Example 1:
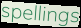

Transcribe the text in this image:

spellings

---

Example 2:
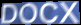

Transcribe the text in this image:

DOCX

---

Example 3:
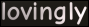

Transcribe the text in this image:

lovingly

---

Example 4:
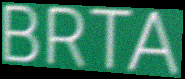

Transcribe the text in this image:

BRTA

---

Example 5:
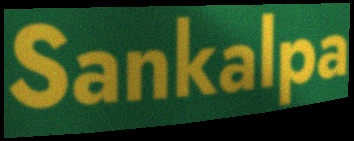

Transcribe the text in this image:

Sankalpa